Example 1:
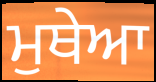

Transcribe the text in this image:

ਮੁਥੇਆ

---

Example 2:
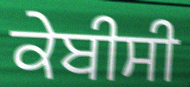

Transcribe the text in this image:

ਕੇਬੀਸੀ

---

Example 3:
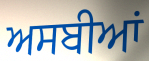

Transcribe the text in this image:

ਅਸਬੀਆਂ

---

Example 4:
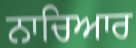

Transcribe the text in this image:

ਨਾਚਿਆਰ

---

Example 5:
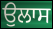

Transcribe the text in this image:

ਉਲਾਸ